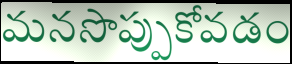
మనసొప్పుకోవడం